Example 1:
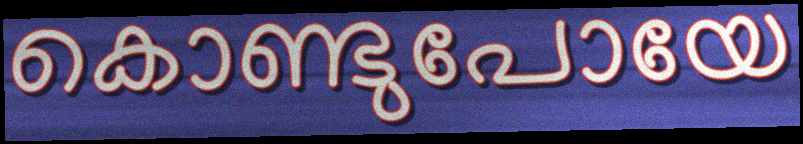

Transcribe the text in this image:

കൊണ്ടുപോയേ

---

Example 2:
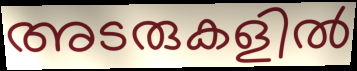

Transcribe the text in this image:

അടരുകളിൽ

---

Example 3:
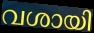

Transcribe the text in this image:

വശായി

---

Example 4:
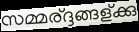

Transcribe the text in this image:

സമ്മര്ദ്ദങ്ങള്ക്കു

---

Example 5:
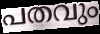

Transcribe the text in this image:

പതവും